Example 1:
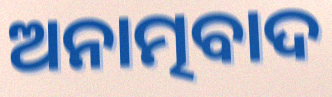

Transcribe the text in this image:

ଅନାତ୍ମବାଦ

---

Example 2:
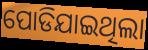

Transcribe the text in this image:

ପୋଡିଯାଇଥିଲା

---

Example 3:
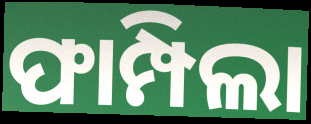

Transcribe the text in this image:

ଫାମ୍ପିଲା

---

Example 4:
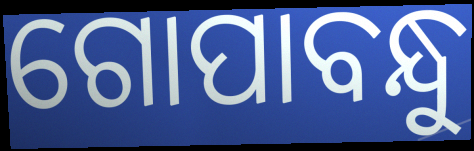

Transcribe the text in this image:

ଗୋପାବନ୍ଧୁ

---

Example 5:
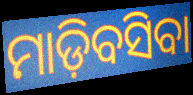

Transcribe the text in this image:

ମାଡ଼ିବସିବା